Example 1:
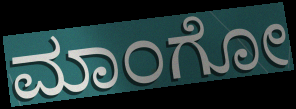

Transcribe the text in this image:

ಮಾಂಗೋ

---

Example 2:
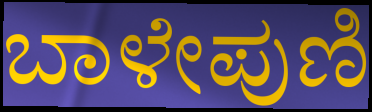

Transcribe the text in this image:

ಬಾಳೇಪುಣಿ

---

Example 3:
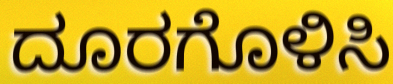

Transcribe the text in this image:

ದೂರಗೊಳಿಸಿ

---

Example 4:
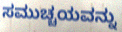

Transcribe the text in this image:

ಸಮುಚ್ಚಯವನ್ನು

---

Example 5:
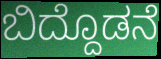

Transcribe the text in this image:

ಬಿದ್ದೊಡನೆ